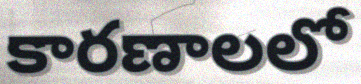
కారణాలలో